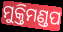
ମୁକ୍ତିମଣ୍ଡପ